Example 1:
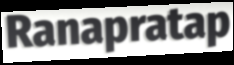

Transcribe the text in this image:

Ranapratap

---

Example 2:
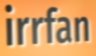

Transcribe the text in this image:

irrfan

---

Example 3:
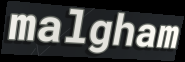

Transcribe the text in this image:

malgham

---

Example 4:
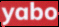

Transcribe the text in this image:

yabo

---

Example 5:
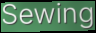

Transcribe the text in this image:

Sewing